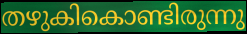
തഴുകികൊണ്ടിരുന്നു